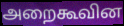
அறைகூவின